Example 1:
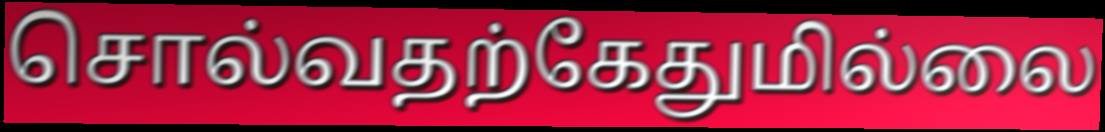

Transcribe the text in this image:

சொல்வதற்கேதுமில்லை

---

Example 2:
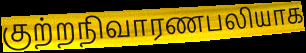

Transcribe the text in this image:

குற்றநிவாரணபலியாக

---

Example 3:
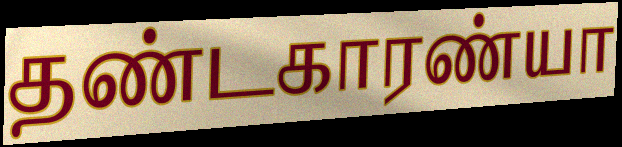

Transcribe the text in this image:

தண்டகாரண்யா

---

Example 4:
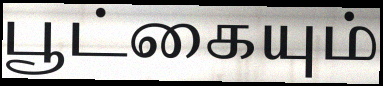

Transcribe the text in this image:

பூட்கையும்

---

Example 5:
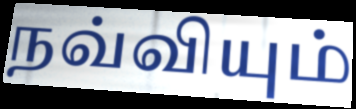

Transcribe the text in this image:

நவ்வியும்